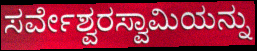
ಸರ್ವೇಶ್ವರಸ್ವಾಮಿಯನ್ನು